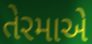
તેરમાએ